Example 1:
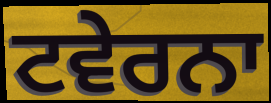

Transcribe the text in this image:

ਟਵੇਰਨਾ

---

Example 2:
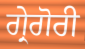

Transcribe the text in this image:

ਗ੍ਰੇਗੋਰੀ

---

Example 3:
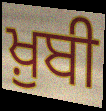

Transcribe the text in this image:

ਖ਼ੁਬੀ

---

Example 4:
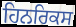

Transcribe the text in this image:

ਹਿਨਰਿਕਸ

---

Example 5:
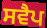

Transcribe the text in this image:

ਸਵੈਪ